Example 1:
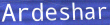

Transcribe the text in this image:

Ardeshar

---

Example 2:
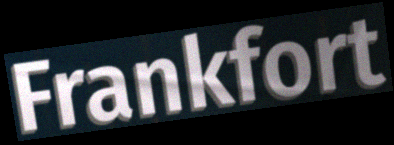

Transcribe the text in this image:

Frankfort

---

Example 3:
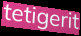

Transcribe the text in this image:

tetigerit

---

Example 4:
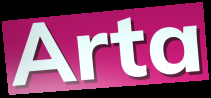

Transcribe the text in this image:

Arta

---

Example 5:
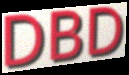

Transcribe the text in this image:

DBD